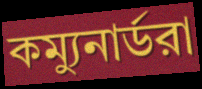
কম্যুনার্ডরা